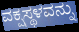
ವಕ್ಷಸ್ಥಳವನ್ನು